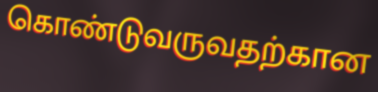
கொண்டுவருவதற்கான